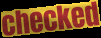
checked